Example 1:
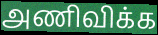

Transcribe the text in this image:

அணிவிக்க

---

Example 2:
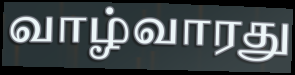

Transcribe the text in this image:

வாழ்வாரது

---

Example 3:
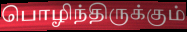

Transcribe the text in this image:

பொழிந்திருக்கும்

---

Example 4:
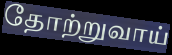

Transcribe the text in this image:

தோற்றுவாய்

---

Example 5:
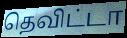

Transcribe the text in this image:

தெவிட்டா